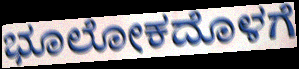
ಭೂಲೋಕದೊಳಗೆ